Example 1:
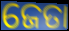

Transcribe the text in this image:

ଜେତା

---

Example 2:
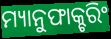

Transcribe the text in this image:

ମ୍ୟାନୁଫାକ୍ଚରିଂ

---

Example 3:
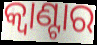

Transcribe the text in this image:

କ୍ୱାଣ୍ଟାର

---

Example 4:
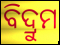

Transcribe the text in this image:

ବିଦ୍ରୁମ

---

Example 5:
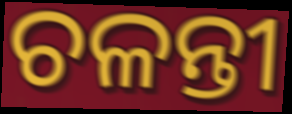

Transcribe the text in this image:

ଚଳନ୍ତୀ